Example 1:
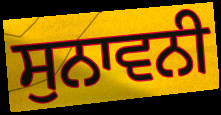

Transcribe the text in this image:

ਸੁਨਾਵਨੀ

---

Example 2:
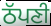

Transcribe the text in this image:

ਠੱਪਣੀ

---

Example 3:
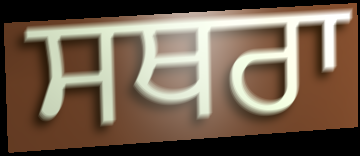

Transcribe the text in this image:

ਸਥਰਾ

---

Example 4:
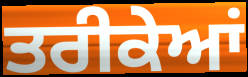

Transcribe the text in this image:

ਤਰੀਕੇਆਂ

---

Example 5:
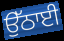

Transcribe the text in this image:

ਉੱਠਾਈ